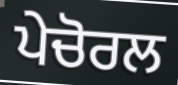
ਪੇਚੋਰਲ